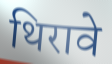
थिरावे